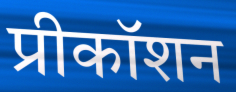
प्रीकॉशन